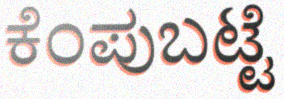
ಕೆಂಪುಬಟ್ಟೆ